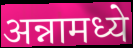
अन्नामध्ये